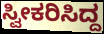
ಸ್ವೀಕರಿಸಿದ್ದ